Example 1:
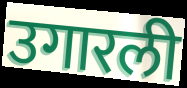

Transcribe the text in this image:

उगारली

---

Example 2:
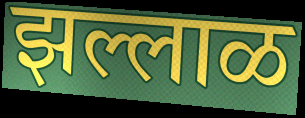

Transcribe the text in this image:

झल्लाळ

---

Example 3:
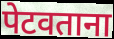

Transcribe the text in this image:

पेटवताना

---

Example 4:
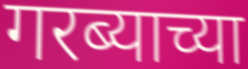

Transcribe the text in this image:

गरब्याच्या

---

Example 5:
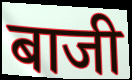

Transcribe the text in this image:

बाजी